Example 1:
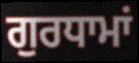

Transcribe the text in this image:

ਗੁਰਧਾਮਾਂ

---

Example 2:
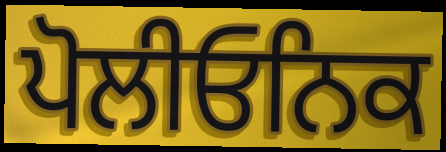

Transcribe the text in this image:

ਪੋਲੀਓਨਿਕ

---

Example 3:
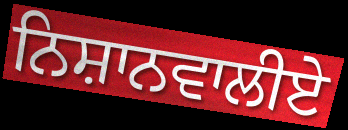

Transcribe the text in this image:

ਨਿਸ਼ਾਨਵਾਲੀਏ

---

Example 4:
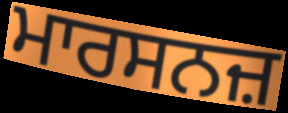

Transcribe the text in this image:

ਮਾਰਸਨਜ਼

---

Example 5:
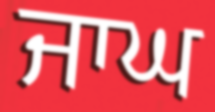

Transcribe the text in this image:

ਜਾਘ